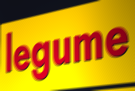
legume